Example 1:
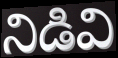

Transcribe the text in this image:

నిడివి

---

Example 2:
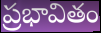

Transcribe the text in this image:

ప్రభావితం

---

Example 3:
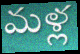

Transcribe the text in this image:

మళ్ల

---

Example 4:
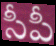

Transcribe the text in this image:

సీపీ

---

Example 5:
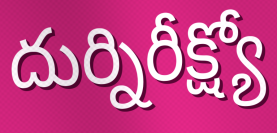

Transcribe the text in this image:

దుర్నిరీక్ష్యో